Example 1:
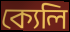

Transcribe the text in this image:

ক্যেলি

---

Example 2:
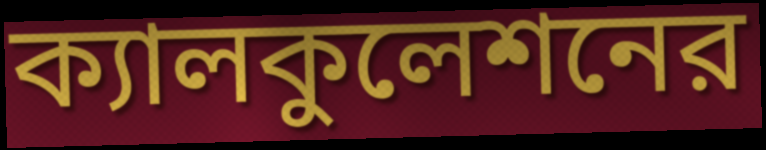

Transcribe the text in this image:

ক্যালকুলেশনের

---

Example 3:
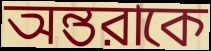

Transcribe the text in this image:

অন্তরাকে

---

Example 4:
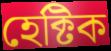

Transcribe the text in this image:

হেক্টিক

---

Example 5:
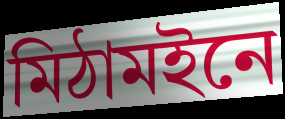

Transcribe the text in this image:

মিঠামইনে